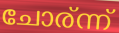
ചോര്ന്ന്